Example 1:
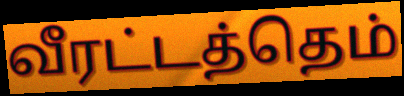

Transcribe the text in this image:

வீரட்டத்தெம்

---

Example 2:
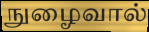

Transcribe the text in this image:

நுழைவால்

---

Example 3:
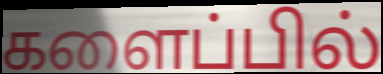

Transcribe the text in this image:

களைப்பில்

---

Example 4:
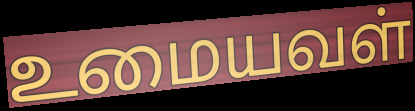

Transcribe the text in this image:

உமையவள்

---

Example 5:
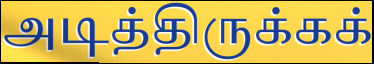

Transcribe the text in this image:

அடித்திருக்கக்